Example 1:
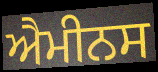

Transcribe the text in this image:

ਐਮੀਨਸ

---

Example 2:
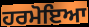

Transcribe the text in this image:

ਹਰਮੋਇਆ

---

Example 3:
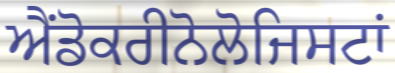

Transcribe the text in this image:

ਐਂਡੋਕਰੀਨੋਲੋਜਿਸਟਾਂ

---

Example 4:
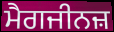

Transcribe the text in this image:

ਮੈਗਜੀਨਜ਼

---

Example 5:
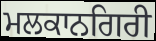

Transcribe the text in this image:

ਮਲਕਾਨਗਿਰੀ